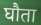
घौता